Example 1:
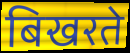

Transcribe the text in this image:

बिखरते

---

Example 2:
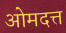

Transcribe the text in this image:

ओमदत्त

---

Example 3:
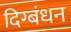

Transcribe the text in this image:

दिग्बंधन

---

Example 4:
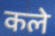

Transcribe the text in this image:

कले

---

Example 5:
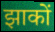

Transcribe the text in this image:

झाकों